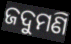
ଜଦୁମଣି